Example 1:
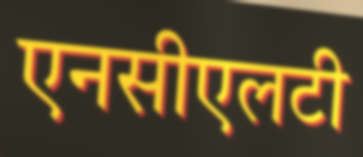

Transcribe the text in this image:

एनसीएलटी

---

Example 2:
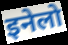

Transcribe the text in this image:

इनेलो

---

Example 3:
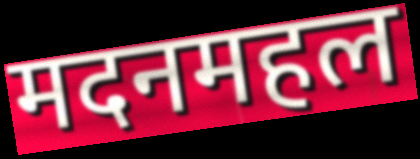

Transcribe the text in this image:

मदनमहल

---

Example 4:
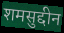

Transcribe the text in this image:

शमसुद्दीन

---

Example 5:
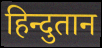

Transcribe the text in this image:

हिन्दुतान